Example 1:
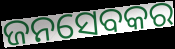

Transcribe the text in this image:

ଜନସେବକର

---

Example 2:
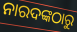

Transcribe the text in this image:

ନାରଦଙ୍କଠାରୁ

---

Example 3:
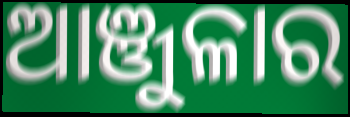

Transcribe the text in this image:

ଆଞ୍ଜୁଳାର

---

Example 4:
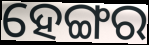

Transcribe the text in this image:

ହେଙ୍ଗର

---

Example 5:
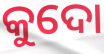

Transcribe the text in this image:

କୁଦୋ